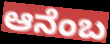
ಆನೆಂಬ